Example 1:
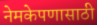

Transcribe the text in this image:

नेमकेपणासाठी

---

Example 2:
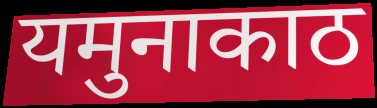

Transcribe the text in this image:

यमुनाकाठ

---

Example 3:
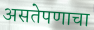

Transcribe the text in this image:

असतेपणाचा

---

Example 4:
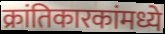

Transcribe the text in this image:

क्रांतिकारकांमध्ये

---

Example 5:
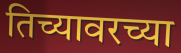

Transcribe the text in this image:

तिच्यावरच्या